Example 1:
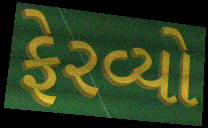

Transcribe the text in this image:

ફેરવ્યો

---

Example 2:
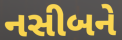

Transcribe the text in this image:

નસીબને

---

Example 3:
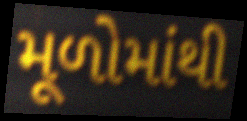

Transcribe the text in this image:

મૂળોમાંથી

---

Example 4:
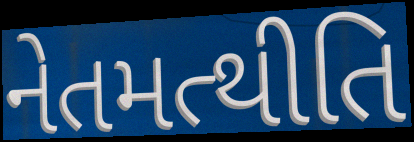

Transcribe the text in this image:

નેતમત્થીતિ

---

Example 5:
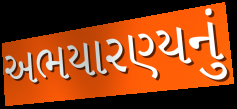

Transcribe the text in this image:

અભયારણ્યનું